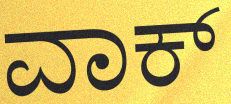
ವಾಕ್